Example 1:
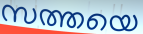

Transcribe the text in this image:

സത്തയെ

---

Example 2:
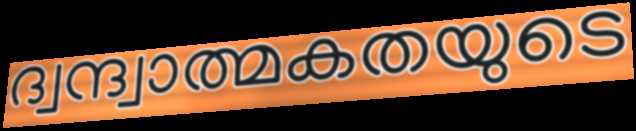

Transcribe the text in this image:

ദ്വന്ദ്വാത്മകതയുടെ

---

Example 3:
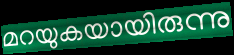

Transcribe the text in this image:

മറയുകയായിരുന്നു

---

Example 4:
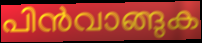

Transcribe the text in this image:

പിൻവാങ്ങുക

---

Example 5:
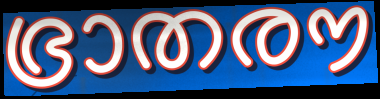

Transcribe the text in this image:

ഭ്രാതരൗ